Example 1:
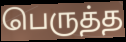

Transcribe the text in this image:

பெருத்த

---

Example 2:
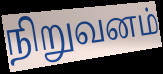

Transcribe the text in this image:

நிறுவனம்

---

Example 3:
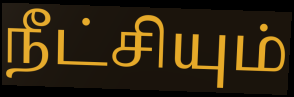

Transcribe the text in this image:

நீட்சியும்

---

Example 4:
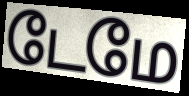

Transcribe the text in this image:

டேமே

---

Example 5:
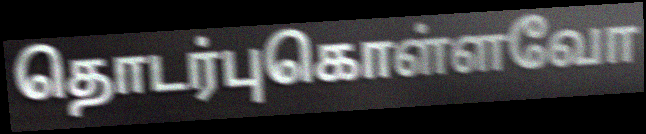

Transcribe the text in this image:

தொடர்புகொள்ளவோ